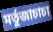
মর্তুজাচাচা